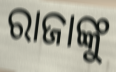
ରାଜାଙ୍କୁ